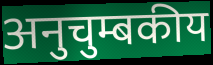
अनुचुम्बकीय